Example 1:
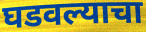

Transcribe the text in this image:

घडवल्याचा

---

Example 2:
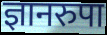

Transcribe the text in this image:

ज्ञानरुपा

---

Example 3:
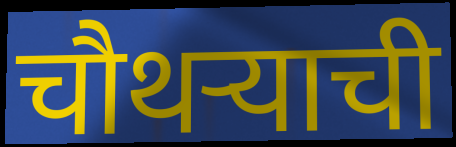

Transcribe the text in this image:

चौथऱ्याची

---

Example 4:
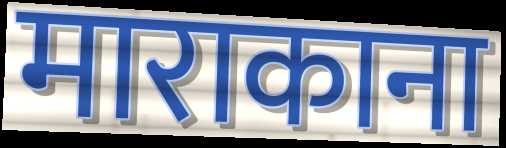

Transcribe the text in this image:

माराकाना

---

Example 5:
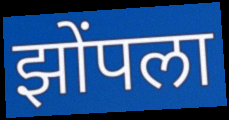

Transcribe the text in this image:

झोंपला